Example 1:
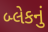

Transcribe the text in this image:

બ્લેકનું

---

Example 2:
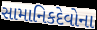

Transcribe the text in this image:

સામાનિકદેવોના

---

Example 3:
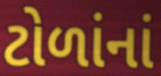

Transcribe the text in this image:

ટોળાંનાં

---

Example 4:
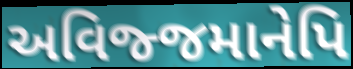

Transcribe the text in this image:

અવિજ્જમાનેપિ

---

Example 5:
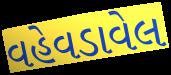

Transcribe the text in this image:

વહેવડાવેલ